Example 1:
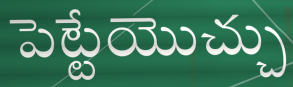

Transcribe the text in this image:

పెట్టేయొచ్చు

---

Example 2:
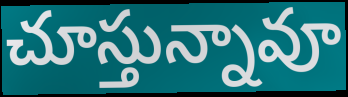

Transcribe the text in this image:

చూస్తున్నావూ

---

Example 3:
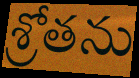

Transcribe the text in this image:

శ్రోతను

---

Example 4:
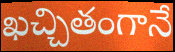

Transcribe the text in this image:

ఖచ్చితంగానే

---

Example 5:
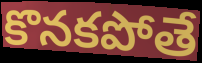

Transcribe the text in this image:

కొనకపోతే